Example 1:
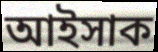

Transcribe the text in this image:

আইসাক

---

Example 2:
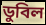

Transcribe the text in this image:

ডুবিল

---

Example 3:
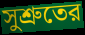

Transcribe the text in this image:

সুশ্রুতের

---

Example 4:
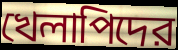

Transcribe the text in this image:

খেলাপিদের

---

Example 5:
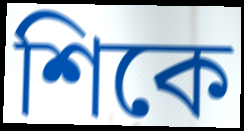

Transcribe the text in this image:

শিকে